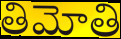
తిమోతి